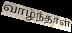
வாழ்ந்தாள்